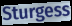
Sturgess